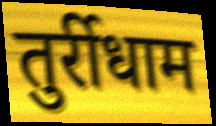
तुर्रीधाम